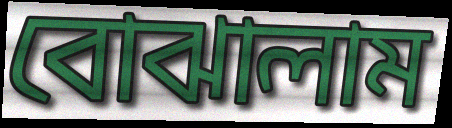
বোঝালাম